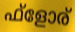
ഫ്ളോര്